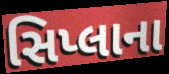
સિપ્લાના